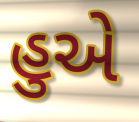
હુએ